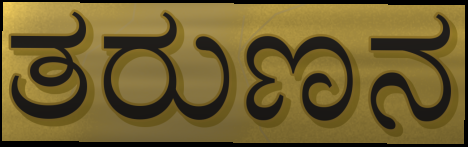
ತರುಣನ